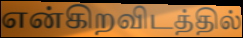
என்கிறவிடத்தில்